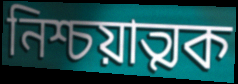
নিশ্চয়াত্মক